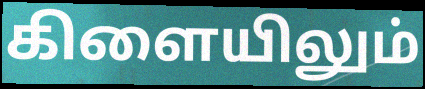
கிளையிலும்